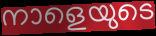
നാളെയുടെ